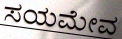
ಸಯಮೇವ